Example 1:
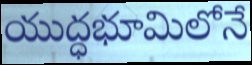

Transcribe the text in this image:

యుద్ధభూమిలోనే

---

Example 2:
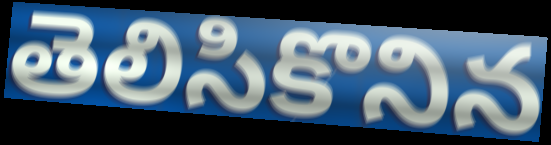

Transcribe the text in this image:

తెలిసికొనిన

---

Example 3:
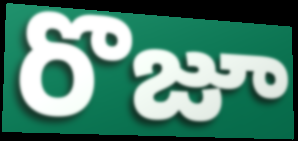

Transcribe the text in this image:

రొజూ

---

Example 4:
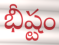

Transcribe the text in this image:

భీష్టం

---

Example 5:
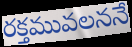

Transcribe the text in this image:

రక్తమువలననే